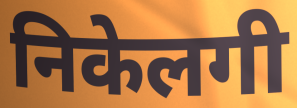
निकेलगी